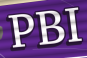
PBI